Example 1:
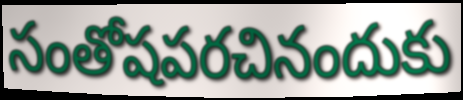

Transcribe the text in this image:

సంతోషపరచినందుకు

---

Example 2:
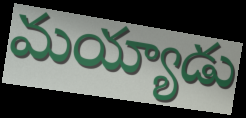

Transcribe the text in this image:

మయ్యాడు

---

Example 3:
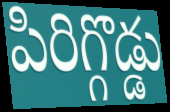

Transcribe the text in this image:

పిరిగ్గొడ్డు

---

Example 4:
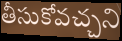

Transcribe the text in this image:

తీసుకోవచ్చని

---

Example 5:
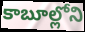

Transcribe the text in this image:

కాబూల్లోని